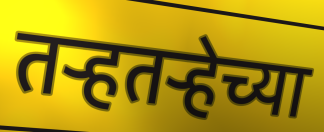
तऱ्हतऱ्हेच्या